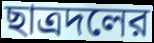
ছাত্রদলের